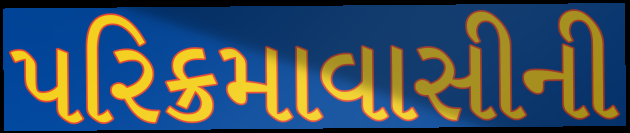
પરિક્રમાવાસીની